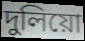
দুলিয়ো